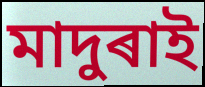
মাদুৰাই